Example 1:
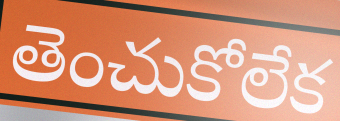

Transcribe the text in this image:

తెంచుకోలేక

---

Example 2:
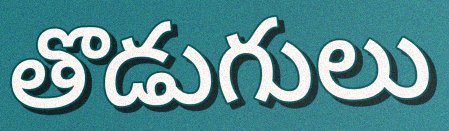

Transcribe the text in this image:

తొడుగులు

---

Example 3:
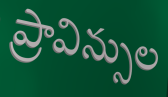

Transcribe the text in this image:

ప్రావిన్సుల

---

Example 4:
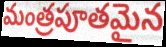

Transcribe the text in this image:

మంత్రపూతమైన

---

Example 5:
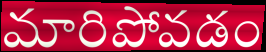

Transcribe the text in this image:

మారిపోవడం